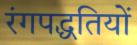
रंगपद्धतियों